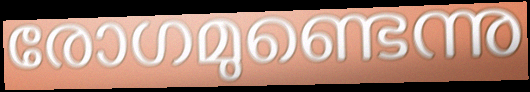
രോഗമുണ്ടെന്നു